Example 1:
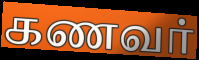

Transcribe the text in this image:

கணவர்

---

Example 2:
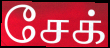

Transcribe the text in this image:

சேக்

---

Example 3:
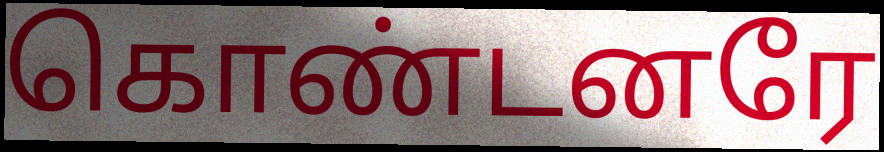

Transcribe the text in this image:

கொண்டனரே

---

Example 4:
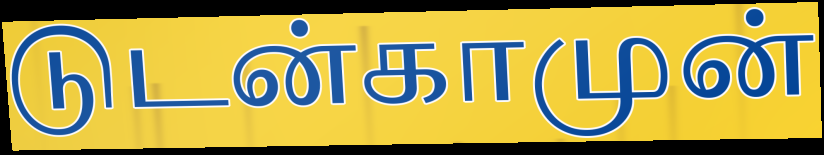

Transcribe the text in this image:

டுடன்காமுன்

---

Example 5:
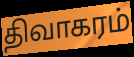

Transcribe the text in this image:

திவாகரம்